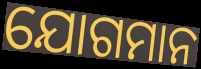
ଯୋଗମାନ